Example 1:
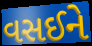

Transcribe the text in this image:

વસઈને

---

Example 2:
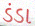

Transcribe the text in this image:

ડંડા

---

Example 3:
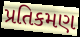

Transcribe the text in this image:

પ્રતિકમણ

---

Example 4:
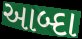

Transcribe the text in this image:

આબ્દા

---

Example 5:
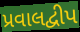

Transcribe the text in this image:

પ્રવાલદ્વીપ